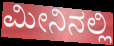
ಮೀನಿನಲ್ಲಿ